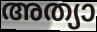
അത്യാ